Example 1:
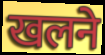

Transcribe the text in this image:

खलने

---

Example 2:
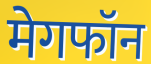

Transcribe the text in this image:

मेगफॉन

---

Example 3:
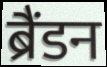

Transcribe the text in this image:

ब्रैंडन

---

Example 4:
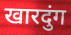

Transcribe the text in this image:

खारदुंग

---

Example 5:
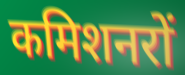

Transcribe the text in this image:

कमिशनरों